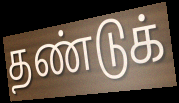
தண்டுக்